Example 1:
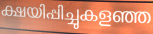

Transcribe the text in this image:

ക്ഷയിപ്പിച്ചുകളഞ്ഞ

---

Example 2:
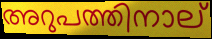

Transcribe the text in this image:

അറുപത്തിനാല്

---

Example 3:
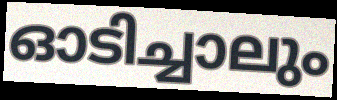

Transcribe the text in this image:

ഓടിച്ചാലും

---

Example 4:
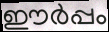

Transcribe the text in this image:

ഈർപ്പം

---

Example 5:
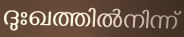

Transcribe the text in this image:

ദുഃഖത്തിൽനിന്ന്